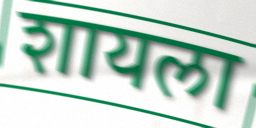
शायला